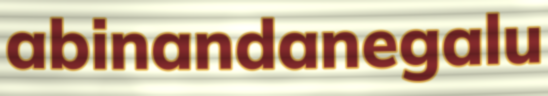
abinandanegalu